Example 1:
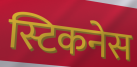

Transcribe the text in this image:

स्टिकनेस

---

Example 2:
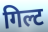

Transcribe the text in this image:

गिल्ट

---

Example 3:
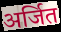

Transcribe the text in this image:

अर्जित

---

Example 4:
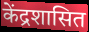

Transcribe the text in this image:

केंद्रशासित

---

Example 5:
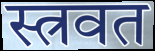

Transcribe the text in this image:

स्त्रवत